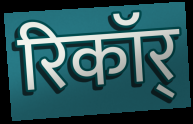
रिकॉर्